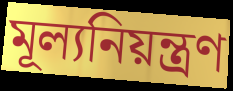
মূল্যনিয়ন্ত্রণ